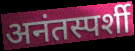
अनंतस्पर्शी